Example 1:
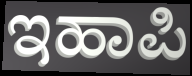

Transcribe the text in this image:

ಇಹಾಪಿ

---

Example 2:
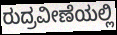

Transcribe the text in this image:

ರುದ್ರವೀಣೆಯಲ್ಲಿ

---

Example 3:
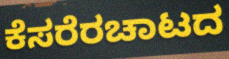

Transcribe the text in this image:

ಕೆಸರೆರಚಾಟದ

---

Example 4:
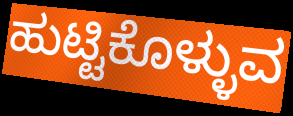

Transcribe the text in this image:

ಹುಟ್ಟಿಕೊಳ್ಳುವ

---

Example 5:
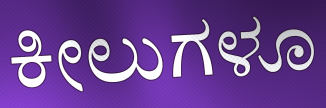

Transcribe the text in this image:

ಕೀಲುಗಳೂ